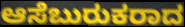
ಆಸೆಬುರುಕರಾದ